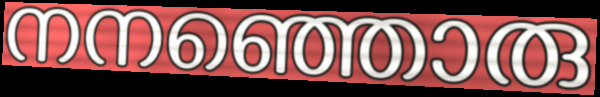
നനഞ്ഞൊരു